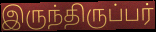
இருந்திருப்பர்